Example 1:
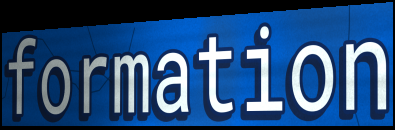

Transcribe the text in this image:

formation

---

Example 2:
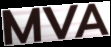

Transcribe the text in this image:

MVA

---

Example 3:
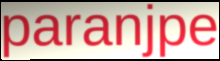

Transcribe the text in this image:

paranjpe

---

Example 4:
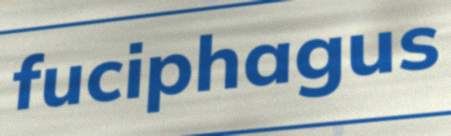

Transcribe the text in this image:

fuciphagus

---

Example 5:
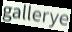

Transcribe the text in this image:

gallerye